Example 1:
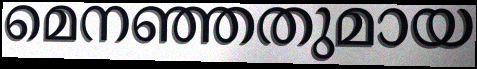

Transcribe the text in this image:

മെനഞ്ഞതുമായ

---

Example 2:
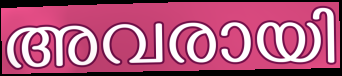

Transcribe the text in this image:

അവരായി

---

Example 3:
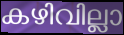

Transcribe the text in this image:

കഴിവില്ലാ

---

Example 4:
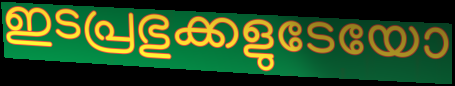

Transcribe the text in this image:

ഇടപ്രഭുക്കളുടേയോ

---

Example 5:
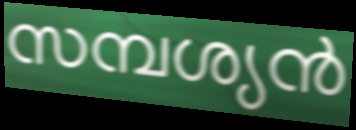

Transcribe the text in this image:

സമ്പശ്യൻ